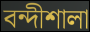
বন্দীশালা